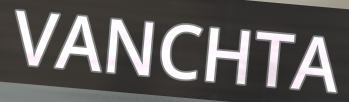
VANCHTA